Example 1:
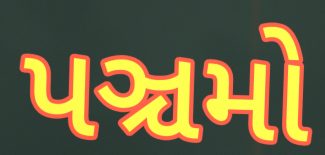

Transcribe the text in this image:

પઞ્ચમો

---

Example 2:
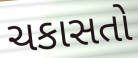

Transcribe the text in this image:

ચકાસતો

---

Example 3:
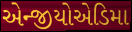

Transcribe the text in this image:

એન્જીયોએડિમા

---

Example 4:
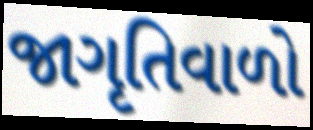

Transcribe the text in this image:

જાગૃતિવાળો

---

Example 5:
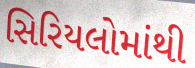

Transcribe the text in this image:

સિરિયલોમાંથી